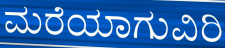
ಮರೆಯಾಗುವಿರಿ